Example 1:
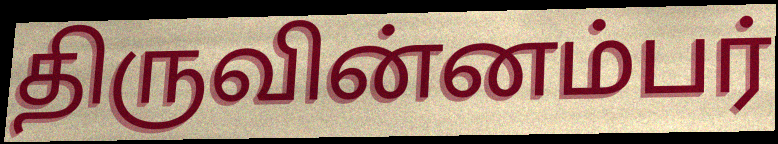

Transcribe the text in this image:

திருவின்னம்பர்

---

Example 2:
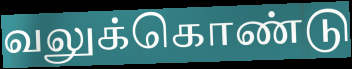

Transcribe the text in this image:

வலுக்கொண்டு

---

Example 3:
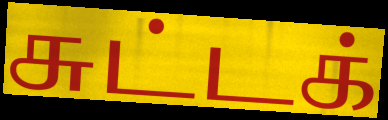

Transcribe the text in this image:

சுட்டக்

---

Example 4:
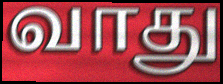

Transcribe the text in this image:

வாது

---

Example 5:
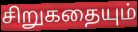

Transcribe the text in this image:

சிறுகதையும்